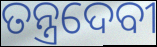
ତନ୍ତ୍ରଦେବୀ